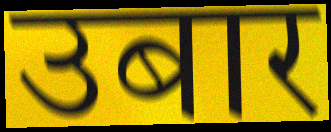
उबार